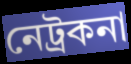
নেট্ৰকনা